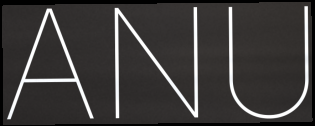
ANU